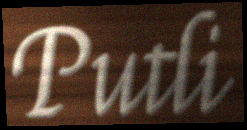
Putli